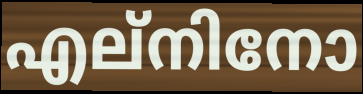
എല്നിനോ